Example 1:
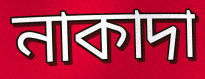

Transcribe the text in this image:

নাকাদা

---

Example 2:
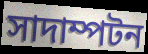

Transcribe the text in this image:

সাদাম্পটন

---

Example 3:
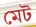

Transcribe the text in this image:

মেট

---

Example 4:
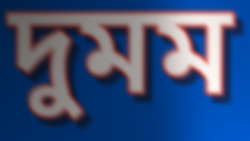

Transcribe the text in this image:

দুমম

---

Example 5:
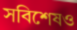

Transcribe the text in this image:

সবিশেষও